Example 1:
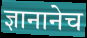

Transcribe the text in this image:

ज्ञानानेच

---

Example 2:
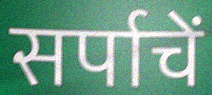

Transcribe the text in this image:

सर्पाचें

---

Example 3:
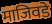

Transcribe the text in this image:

माजिवडे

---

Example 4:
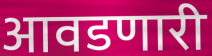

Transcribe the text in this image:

आवडणारी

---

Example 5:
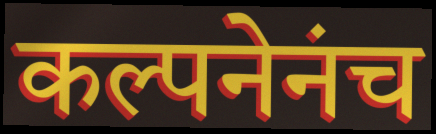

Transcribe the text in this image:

कल्पनेनंच